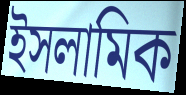
ইসলামিক